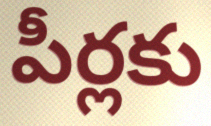
పీర్లకు